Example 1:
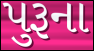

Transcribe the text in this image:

પુરૂના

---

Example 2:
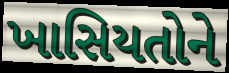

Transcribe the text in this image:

ખાસિયતોને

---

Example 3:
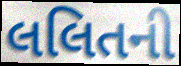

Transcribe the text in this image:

લલિતની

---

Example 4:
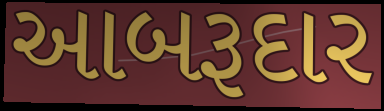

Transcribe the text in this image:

આબરૂદાર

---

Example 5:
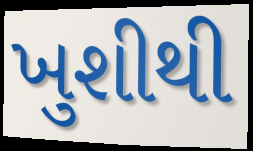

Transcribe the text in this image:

ખુશીથી